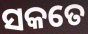
ସକତେ